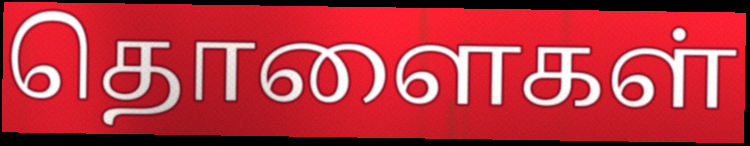
தொளைகள்